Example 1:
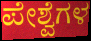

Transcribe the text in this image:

ಪೇಶ್ವೆಗಳ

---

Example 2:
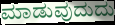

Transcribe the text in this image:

ಮಾಡುವುದುದು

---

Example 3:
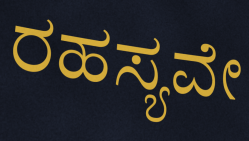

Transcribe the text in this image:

ರಹಸ್ಯವೇ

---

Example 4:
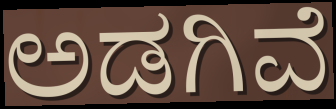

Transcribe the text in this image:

ಅಡಗಿವೆ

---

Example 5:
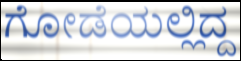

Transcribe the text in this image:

ಗೋಡೆಯಲ್ಲಿದ್ದ